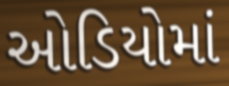
ઓડિયોમાં